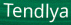
Tendlya